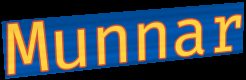
Munnar